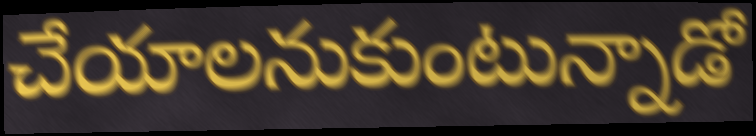
చేయాలనుకుంటున్నాడో